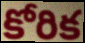
కోరిక